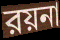
রয়না